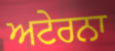
ਅਟੇਰਨਾ